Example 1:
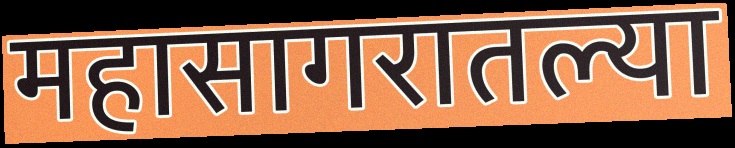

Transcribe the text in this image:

महासागरातल्या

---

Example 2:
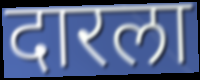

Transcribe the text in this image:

दारला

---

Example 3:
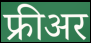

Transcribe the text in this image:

फ्रीअर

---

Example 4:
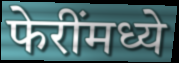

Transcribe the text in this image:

फेरींमध्ये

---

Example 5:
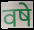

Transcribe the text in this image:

वषे